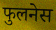
फुलनेस